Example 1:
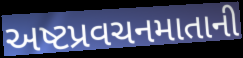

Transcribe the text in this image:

અષ્ટપ્રવચનમાતાની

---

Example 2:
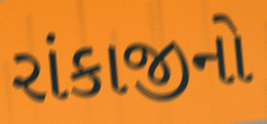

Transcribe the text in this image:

રાંકાજીનો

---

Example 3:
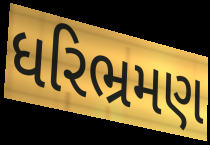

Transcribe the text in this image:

ધરિભ્રમણ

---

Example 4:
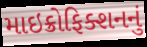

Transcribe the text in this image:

માઇક્રોફિક્શનનું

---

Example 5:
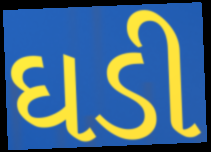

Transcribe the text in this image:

ઘડી